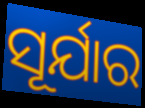
ସୂର୍ଯାର